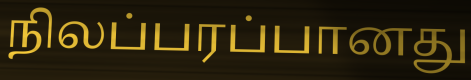
நிலப்பரப்பானது